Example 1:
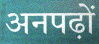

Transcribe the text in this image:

अनपढ़ों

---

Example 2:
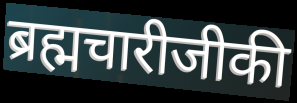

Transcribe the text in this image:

ब्रह्मचारीजीकी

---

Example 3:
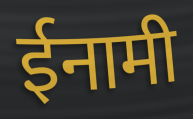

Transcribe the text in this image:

ईनामी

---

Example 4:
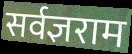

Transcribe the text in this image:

सर्वज्ञराम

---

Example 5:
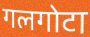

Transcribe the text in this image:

गलगोटा